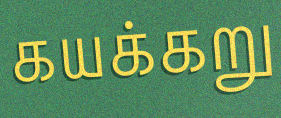
கயக்கறு